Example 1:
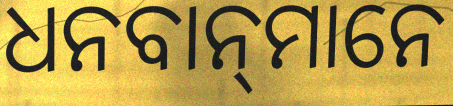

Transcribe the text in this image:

ଧନବାନ୍‍ମାନେ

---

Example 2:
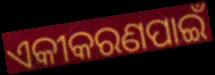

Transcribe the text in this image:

ଏକୀକରଣପାଇଁ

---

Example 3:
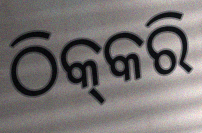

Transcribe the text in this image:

ଠିକ୍‍କରି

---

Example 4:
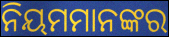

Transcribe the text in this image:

ନିୟମମାନଙ୍କର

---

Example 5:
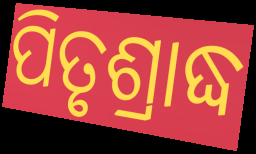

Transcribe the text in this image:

ପିତୃଶ୍ରାଦ୍ଧ